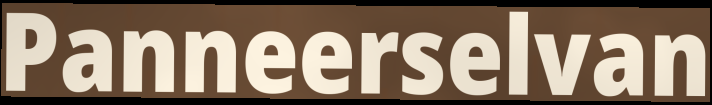
Panneerselvan